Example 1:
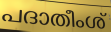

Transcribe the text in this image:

പദാതീംശ്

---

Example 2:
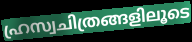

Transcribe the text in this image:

ഹ്രസ്വചിത്രങ്ങളിലൂടെ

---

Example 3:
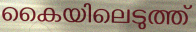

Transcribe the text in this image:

കൈയിലെടുത്ത്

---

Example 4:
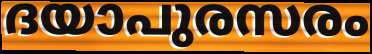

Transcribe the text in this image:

ദയാപുരസരം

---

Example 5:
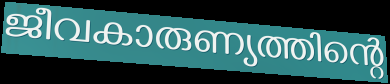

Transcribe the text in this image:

ജീവകാരുണ്യത്തിന്റെ